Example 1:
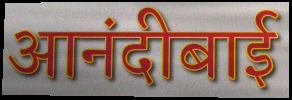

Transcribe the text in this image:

आनंदीबाई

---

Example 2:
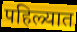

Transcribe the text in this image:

पहिल्यात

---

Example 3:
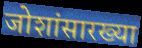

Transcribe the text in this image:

जोशांसारख्या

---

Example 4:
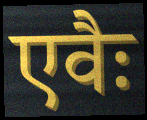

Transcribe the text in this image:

एवैः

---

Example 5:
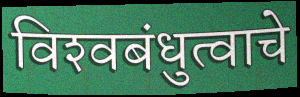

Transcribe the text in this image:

विश्वबंधुत्वाचे